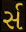
ર્સ